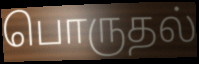
பொருதல்